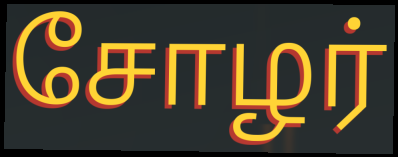
சோழர்